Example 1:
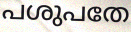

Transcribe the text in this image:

പശുപതേ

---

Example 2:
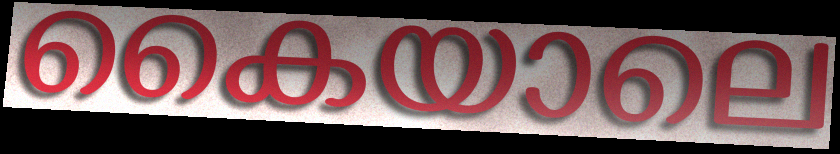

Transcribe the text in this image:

കൈയാലെ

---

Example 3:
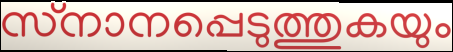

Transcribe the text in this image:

സ്‌നാനപ്പെടുത്തുകയും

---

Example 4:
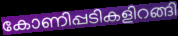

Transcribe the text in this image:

കോണിപ്പടികളിറങ്ങി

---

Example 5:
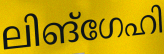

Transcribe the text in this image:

ലിങ്ഗേഹി